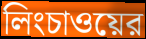
লিংচাওয়ের